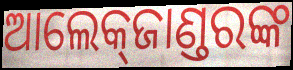
ଆଲେକ୍‍ଜାଣ୍ଡରଙ୍କ